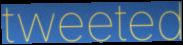
tweeted